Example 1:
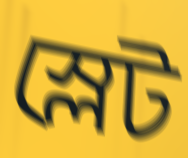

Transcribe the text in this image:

স্লেট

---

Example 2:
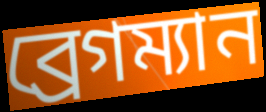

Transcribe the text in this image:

ব্রেগম্যান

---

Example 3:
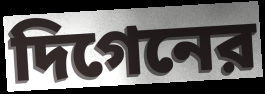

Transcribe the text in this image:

দিগেনের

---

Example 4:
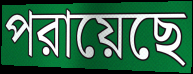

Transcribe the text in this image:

পরায়েছে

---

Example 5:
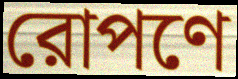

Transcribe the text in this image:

রোপণে